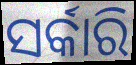
ସର୍କାରି